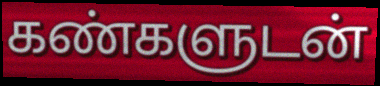
கண்களுடன்